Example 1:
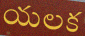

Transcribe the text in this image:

యలక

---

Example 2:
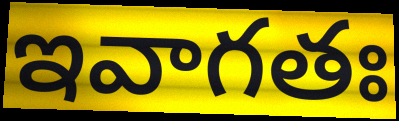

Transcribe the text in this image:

ఇవాగతః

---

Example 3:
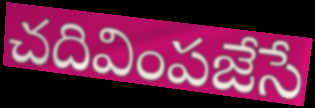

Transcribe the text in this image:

చదివింపజేసే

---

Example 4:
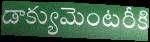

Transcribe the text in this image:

డాక్యుమెంటరీకి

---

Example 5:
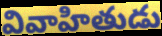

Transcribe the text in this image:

వివాహితుడు